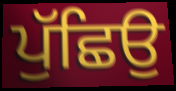
ਪੁੱਛਿਉ